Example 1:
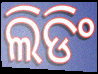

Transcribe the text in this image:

ଲିଡିଂ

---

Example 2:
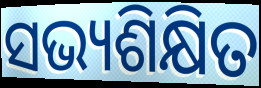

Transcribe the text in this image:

ସଭ୍ୟଶିକ୍ଷିତ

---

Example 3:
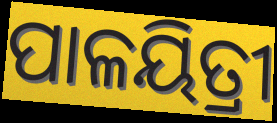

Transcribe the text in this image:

ପାଳୟିତ୍ରୀ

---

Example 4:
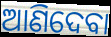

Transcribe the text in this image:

ଆଣିଦେବା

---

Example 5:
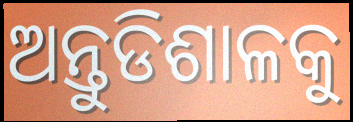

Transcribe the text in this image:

ଅନ୍ତୁଡିଶାଳକୁ